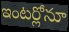
ఇంటర్లోనూ